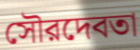
সৌরদেবতা